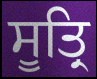
ਸੂਤ੍ਰਿ